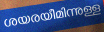
ശയരയീമിന്നുള്ള